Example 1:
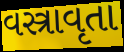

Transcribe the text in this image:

વસ્ત્રાવૃતા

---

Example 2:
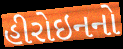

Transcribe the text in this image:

હીરોઇનનો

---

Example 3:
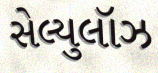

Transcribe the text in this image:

સેલ્યુલૉઝ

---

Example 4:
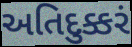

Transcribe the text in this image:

અતિદુક્કરં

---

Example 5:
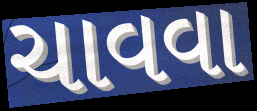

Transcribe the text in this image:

ચાવવા